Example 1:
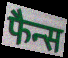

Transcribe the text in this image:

फैन्स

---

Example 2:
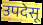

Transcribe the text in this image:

उपदेसू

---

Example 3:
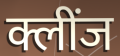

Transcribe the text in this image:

क्लींज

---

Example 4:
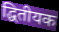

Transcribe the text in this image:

द्धितीयक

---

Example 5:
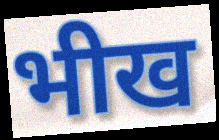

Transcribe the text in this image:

भीख